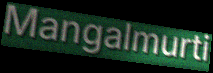
Mangalmurti